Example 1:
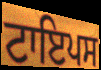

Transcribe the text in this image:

ਟਾਇਪਸ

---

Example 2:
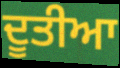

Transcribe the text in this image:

ਦੂਤੀਆ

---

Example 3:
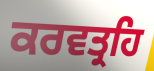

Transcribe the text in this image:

ਕਰਵਤ੍ਰਹਿ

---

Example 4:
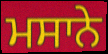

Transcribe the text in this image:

ਮਸਾਨੇ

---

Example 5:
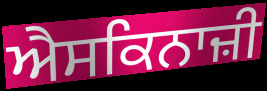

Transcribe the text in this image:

ਐਸਕਿਨਾਜ਼ੀ